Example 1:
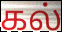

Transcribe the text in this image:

கல்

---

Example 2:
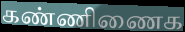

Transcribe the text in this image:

கண்ணிணைக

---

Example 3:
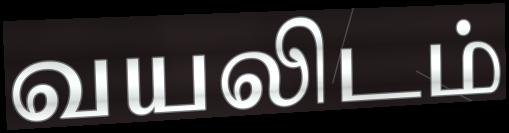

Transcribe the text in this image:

வயலிடம்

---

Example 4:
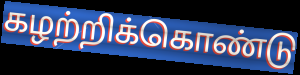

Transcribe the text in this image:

கழற்றிக்கொண்டு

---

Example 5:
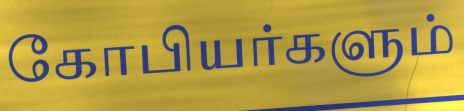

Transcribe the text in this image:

கோபியர்களும்